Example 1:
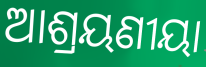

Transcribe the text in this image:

ଆଶ୍ରୟଣୀୟା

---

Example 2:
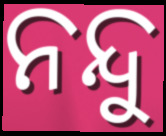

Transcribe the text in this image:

ନନ୍ଦୁ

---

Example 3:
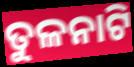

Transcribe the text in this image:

ତୁଳନାଟି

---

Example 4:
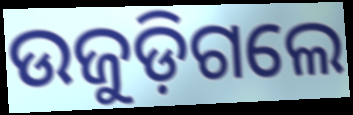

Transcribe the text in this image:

ଉଜୁଡ଼ିଗଲେ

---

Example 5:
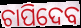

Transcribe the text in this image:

ଚାପିଦେବ